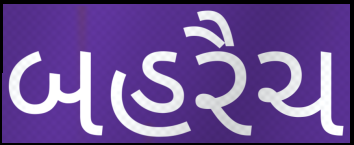
બહરૈચ